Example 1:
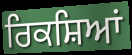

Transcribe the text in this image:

ਰਿਕਸ਼ਿਆਂ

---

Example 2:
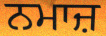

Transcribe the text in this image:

ਨਮਾਜ਼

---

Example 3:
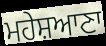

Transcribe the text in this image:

ਮਹੇਸ਼ਆਣਾ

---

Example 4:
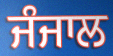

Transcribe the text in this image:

ਜੰਜਾਲ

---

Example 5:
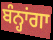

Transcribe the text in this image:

ਬੰਨ੍ਹਾਂਗਾ